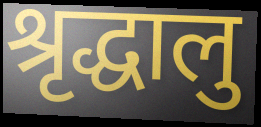
श्रृद्धालु